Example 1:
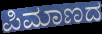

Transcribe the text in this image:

ಪಿಮಾಣದ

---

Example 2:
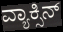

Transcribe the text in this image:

ವ್ಯಾಕ್ಸಿನ್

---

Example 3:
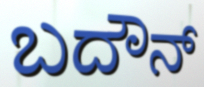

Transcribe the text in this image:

ಬದೌನ್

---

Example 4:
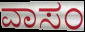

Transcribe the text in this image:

ವಾಸಂ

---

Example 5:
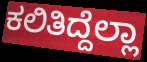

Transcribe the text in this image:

ಕಲಿತಿದ್ದೆಲ್ಲಾ